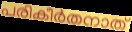
പരികീർതനാത്